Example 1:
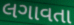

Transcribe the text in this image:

લગાવતા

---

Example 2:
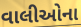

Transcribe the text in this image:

વાલીઓના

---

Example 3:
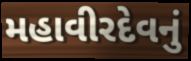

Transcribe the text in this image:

મહાવીરદેવનું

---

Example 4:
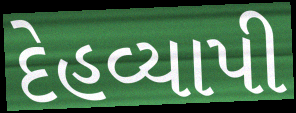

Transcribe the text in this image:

દેહવ્યાપી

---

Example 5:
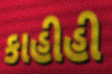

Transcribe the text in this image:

કાહીહી